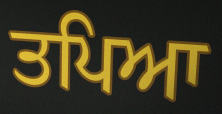
ਤਪਿਆ